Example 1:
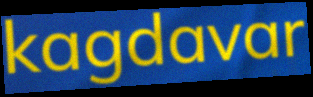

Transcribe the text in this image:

kagdavar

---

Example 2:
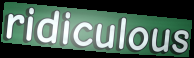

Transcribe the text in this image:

ridiculous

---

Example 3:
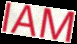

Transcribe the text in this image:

IAM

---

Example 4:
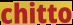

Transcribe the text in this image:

chitto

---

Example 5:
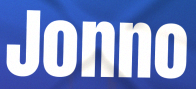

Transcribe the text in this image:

Jonno